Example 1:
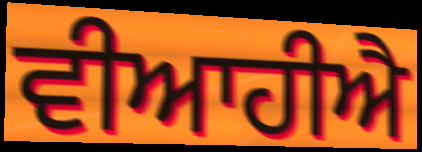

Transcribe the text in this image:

ਵੀਆਹੀਐ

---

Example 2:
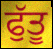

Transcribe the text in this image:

ਫੁੱਤੂ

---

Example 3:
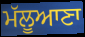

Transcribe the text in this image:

ਮੱਲੂਆਣਾ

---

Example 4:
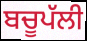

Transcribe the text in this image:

ਬਚੂਪੱਲੀ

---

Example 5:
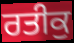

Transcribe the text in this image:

ਰਤੀਕੁ